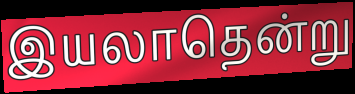
இயலாதென்று